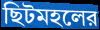
ছিটমহলের